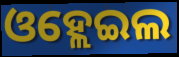
ଓହ୍ଲେଇଲ